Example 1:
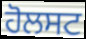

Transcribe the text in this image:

ਹੋਲਸਟ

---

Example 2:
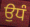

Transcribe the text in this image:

ਉਧੰ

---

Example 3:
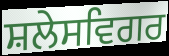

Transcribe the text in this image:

ਸ਼ਲੇਸਵਿਗਰ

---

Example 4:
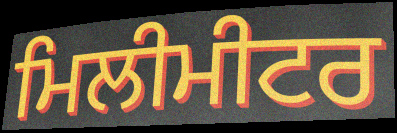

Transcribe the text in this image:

ਮਿਲੀਮੀਟਰ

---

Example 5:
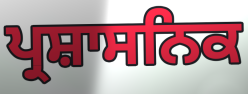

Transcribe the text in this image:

ਪ੍ਰਸ਼ਾਸਨਿਕ